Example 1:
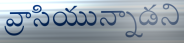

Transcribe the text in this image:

వ్రాసియున్నాడని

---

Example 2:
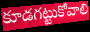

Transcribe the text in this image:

కూడగట్టుకోవాలి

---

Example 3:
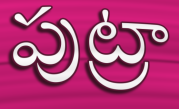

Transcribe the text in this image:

పుట్రా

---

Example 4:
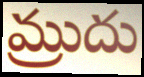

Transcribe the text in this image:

మ్రుదు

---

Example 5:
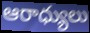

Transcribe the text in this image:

ఆరాధ్యులు